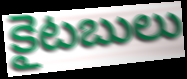
కైటబులు